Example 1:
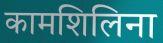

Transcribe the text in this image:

कामशिलिना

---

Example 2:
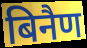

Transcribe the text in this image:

बिनैण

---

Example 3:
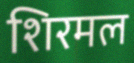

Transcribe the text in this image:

शिरमल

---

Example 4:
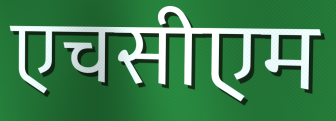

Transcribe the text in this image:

एचसीएम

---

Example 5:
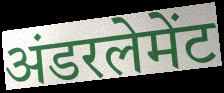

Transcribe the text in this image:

अंडरलेमेंट